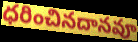
ధరించినదానవూ